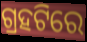
ଗ୍ରହଟିରେ